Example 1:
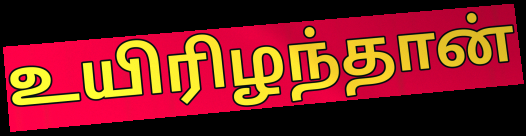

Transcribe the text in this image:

உயிரிழந்தான்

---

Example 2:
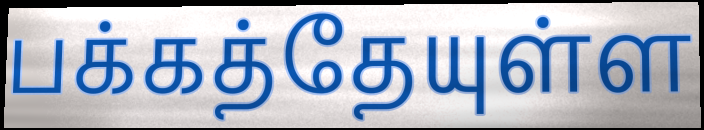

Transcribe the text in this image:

பக்கத்தேயுள்ள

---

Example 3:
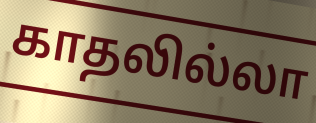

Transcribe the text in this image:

காதலில்லா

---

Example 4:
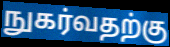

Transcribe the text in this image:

நுகர்வதற்கு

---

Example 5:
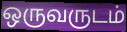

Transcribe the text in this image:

ஒருவருடம்